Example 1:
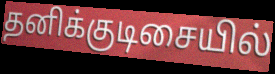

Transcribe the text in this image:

தனிக்குடிசையில்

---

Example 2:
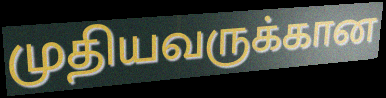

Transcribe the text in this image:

முதியவருக்கான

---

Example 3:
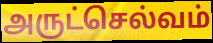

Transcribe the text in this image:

அருட்செல்வம்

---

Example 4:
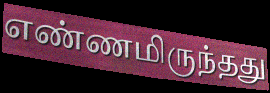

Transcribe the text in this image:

எண்ணமிருந்தது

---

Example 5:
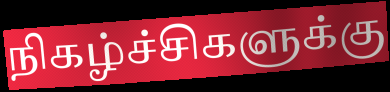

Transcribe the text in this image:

நிகழ்ச்சிகளுக்கு